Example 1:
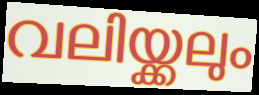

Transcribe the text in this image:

വലിയ്ക്കലും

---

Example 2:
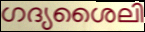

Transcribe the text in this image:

ഗദ്യശൈലി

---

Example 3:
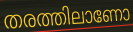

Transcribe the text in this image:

തരത്തിലാണോ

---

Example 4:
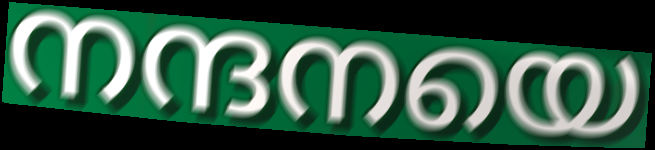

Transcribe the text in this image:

നന്ദനയെ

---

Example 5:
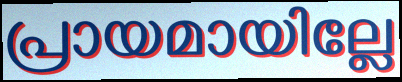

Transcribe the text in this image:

പ്രായമായില്ലേ